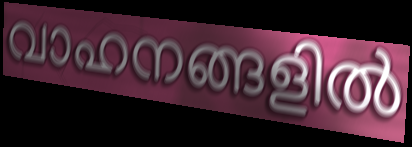
വാഹനങ്ങളിൽ